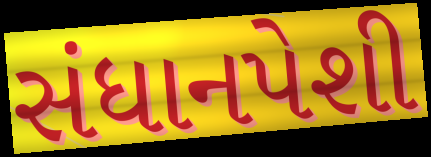
સંધાનપેશી